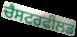
ਚੈਸਟਰਫੀਲਡ